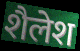
शैलेश